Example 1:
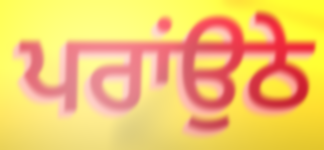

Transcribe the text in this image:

ਪਰਾਂਉਠੇ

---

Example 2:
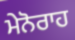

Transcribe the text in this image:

ਮੇਨੋਰਾਹ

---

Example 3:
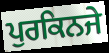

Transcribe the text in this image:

ਪੁਰਕਿਨਜੇ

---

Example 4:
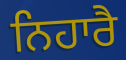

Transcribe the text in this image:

ਨਿਹਾਰੈ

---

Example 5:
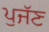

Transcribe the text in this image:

ਪੁਜੱਣ